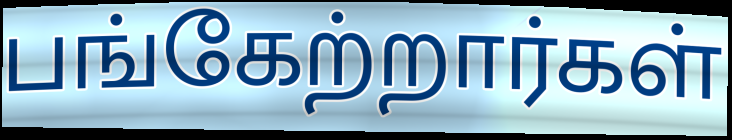
பங்கேற்றார்கள்